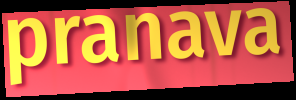
pranava